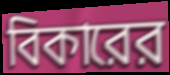
বিকারের